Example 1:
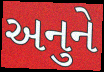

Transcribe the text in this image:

અનુને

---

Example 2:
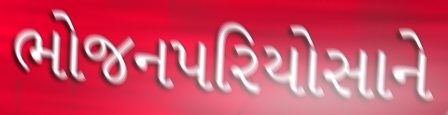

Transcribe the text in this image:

ભોજનપરિયોસાને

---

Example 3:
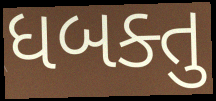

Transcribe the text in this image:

ધબક્તુ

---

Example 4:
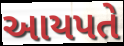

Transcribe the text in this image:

આયપતે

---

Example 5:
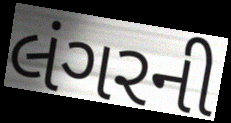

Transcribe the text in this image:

લંગરની